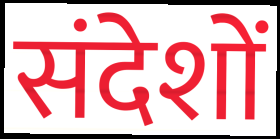
संदेशों